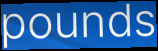
pounds